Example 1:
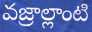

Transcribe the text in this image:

వజ్రాల్లాంటి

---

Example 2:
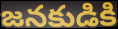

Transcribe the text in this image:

జనకుడికి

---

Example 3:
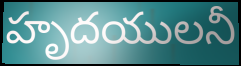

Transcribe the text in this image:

హృదయులనీ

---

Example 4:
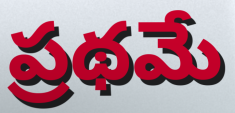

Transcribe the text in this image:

ప్రథమే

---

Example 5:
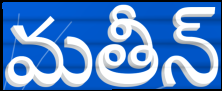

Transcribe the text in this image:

మతీన్